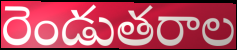
రెండుతరాల